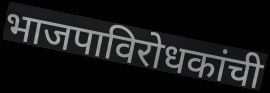
भाजपाविरोधकांची